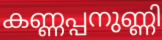
കണ്ണപ്പനുണ്ണി